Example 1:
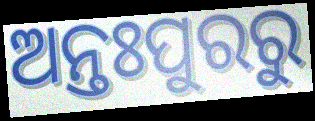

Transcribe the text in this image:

ଅନ୍ତଃପୁରରୁ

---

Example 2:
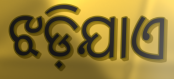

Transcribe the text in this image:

ଝଡ଼ିଯାଏ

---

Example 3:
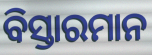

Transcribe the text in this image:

ବିସ୍ତାରମାନ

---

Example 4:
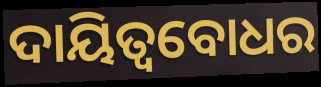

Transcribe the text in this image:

ଦାୟିତ୍ବବୋଧର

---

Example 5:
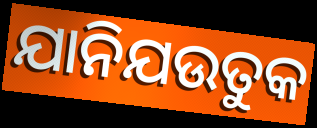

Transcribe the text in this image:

ଯାନିଯଉତୁକ